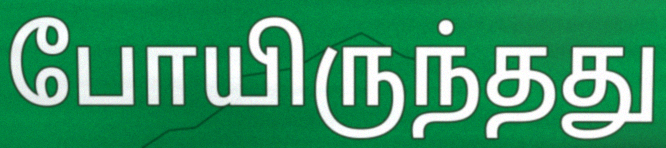
போயிருந்தது